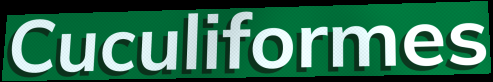
Cuculiformes